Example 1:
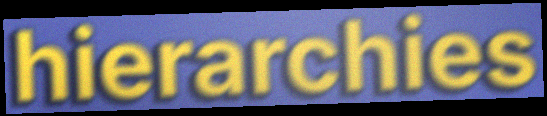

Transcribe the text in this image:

hierarchies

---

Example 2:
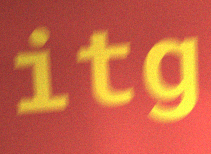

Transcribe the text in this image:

itg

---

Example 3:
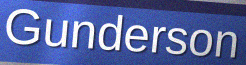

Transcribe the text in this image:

Gunderson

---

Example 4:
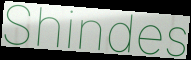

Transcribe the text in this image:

Shindes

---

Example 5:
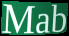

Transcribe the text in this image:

Mab